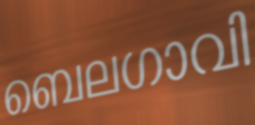
ബെലഗാവി